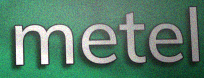
metel